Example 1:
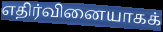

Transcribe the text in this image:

எதிர்வினையாகக்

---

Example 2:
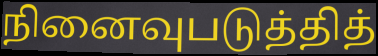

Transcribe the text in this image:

நினைவுபடுத்தித்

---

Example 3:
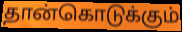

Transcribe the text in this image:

தான்கொடுக்கும்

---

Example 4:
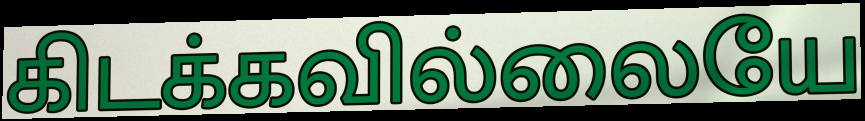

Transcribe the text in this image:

கிடக்கவில்லையே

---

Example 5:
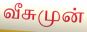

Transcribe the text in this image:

வீசுமுன்